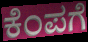
ಕೆಂಪಗೆ